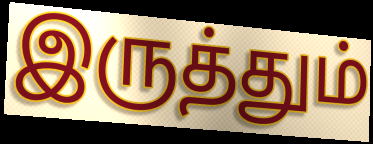
இருத்தும்